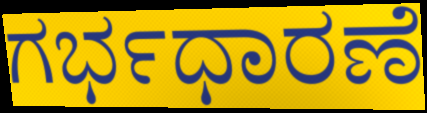
ಗರ್ಭಧಾರಣೆ